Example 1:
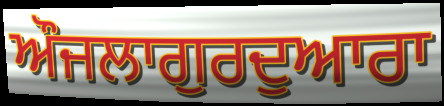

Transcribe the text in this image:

ਔਜਲਾਗੁਰਦੁਆਰਾ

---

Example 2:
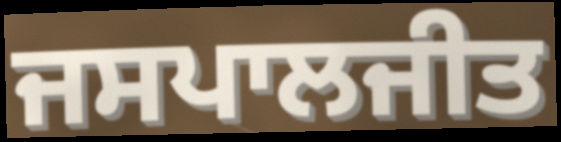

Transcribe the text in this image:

ਜਸਪਾਲਜੀਤ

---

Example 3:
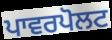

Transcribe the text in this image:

ਪਾਵਰਪੋਲਟ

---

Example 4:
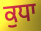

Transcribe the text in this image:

ਕੁਧਾ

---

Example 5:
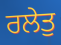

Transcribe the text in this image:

ਰਲੇਤੁ